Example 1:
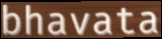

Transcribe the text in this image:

bhavata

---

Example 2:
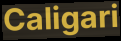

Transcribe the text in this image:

Caligari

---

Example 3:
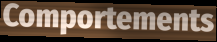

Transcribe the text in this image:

Comportements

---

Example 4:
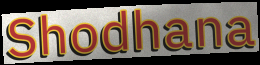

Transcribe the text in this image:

Shodhana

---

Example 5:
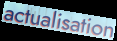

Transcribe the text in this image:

actualisation